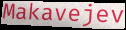
Makavejev